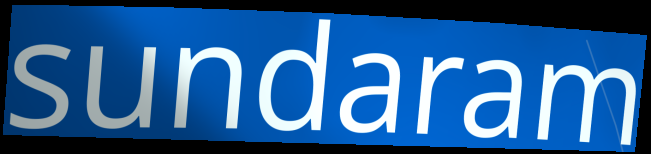
sundaram